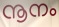
നൂനം